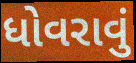
ધોવરાવું